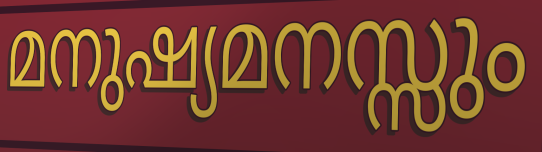
മനുഷ്യമനസ്സും